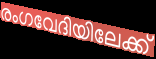
രംഗവേദിയിലേക്ക്